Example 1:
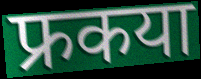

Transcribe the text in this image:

फ्रकया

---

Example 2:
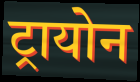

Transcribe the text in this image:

ट्रायोन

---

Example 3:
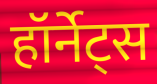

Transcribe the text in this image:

हॉर्नेट्स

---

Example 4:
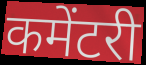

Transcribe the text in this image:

कमेंटरी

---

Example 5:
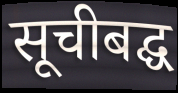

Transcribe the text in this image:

सूचीबद्घ